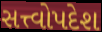
સત્ત્વોપદેશ